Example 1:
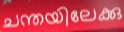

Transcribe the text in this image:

ചന്തയിലേക്കു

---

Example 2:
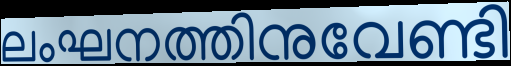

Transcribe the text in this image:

ലംഘനത്തിനുവേണ്ടി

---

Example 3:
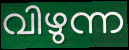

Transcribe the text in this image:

വിഴുന്ന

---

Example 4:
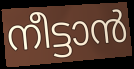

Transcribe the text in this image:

നീട്ടാൻ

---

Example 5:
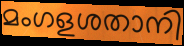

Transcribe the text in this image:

മംഗളശതാനി